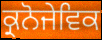
ਕ੍ਰਨੋਜੇਵਿਕ